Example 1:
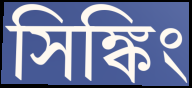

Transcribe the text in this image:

সিঙ্কিং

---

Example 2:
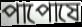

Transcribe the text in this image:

পাপোষে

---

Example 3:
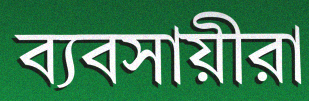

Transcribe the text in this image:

ব্যবসায়ীরা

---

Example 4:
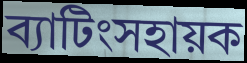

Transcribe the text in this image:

ব্যাটিংসহায়ক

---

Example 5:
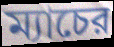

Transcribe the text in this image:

ম্যাচের